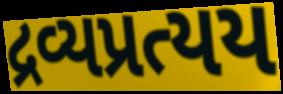
દ્રવ્યપ્રત્યય